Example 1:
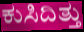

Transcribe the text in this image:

ಕುಸಿದಿತ್ತು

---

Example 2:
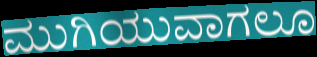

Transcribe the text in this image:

ಮುಗಿಯುವಾಗಲೂ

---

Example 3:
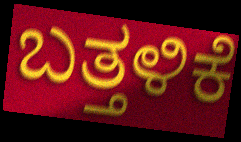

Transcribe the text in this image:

ಬತ್ತಳಿಕೆ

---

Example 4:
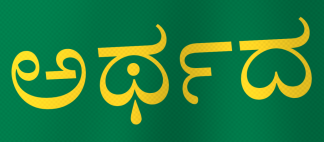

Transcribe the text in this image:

ಅರ್ಥದ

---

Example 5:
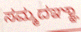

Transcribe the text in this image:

ಸಮ್ಮದಞ್ಞಾ